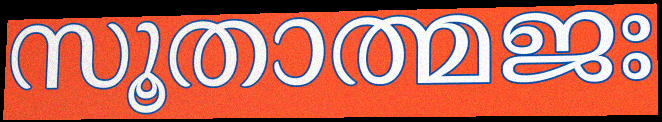
സൂതാത്മജഃ